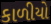
કાળીયો